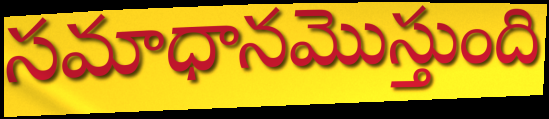
సమాధానమొస్తుంది